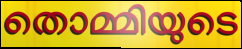
തൊമ്മിയുടെ